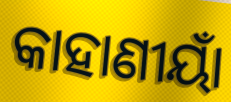
କାହାଣୀୟାଁ